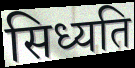
सिध्यति